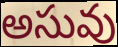
అసువు